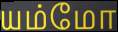
யம்மோ